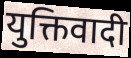
युक्तिवादी